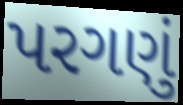
પરગણું